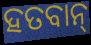
ହତବାନ୍